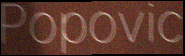
Popovic